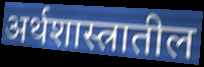
अर्थशास्त्रातील